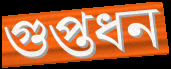
গুপ্তধন